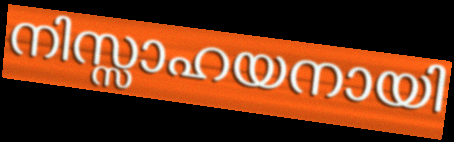
നിസ്സാഹയനായി